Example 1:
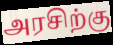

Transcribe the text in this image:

அரசிற்கு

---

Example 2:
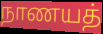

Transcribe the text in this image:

நாணயத்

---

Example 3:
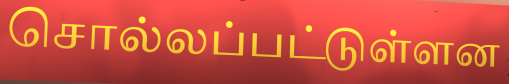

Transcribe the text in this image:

சொல்லப்பட்டுள்ளன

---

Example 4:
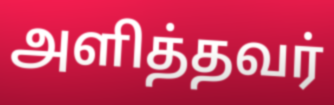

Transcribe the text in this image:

அளித்தவர்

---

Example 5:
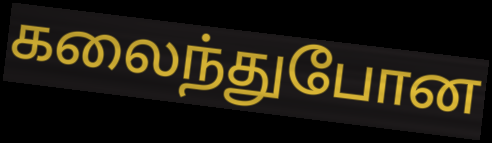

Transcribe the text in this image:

கலைந்துபோன